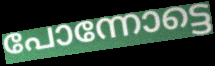
പോന്നോട്ടെ